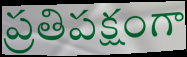
ప్రతిపక్షంగా